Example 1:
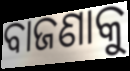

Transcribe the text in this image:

ବାଜଣାକୁ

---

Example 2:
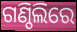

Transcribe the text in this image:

ଗଣ୍ଠିଲିରେ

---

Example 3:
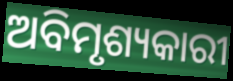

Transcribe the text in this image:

ଅବିମୃଶ୍ୟକାରୀ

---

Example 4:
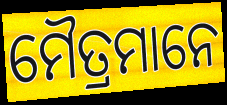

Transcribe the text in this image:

ମୈତ୍ରମାନେ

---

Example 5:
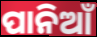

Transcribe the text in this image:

ପାନିଆଁ